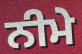
ਨੀਮੇ